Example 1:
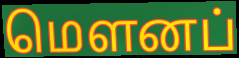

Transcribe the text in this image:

மெளனப்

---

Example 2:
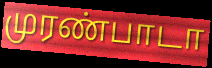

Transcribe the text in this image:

முரண்பாடா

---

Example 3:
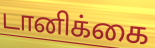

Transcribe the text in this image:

டானிக்கை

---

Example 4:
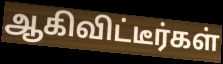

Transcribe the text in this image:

ஆகிவிட்டீர்கள்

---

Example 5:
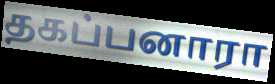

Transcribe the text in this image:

தகப்பனாரா